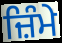
ਜ਼ਿੰਮੇ